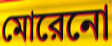
মোরেনো